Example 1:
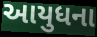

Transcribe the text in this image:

આયુધના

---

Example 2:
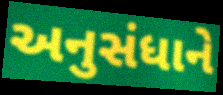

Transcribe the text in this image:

અનુસંધાને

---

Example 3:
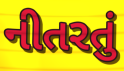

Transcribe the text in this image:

નીતરતું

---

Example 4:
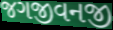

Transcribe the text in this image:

જગજીવનજી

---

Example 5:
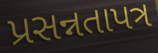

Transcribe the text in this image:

પ્રસન્નતાપત્ર